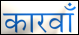
कारवाँ